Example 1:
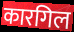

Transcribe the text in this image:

कारगिल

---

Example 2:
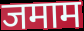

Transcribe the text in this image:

जमाम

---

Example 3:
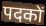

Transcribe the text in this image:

पदकों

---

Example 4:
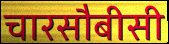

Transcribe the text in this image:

चारसौबीसी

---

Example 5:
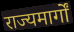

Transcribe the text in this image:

राज्यमार्गों